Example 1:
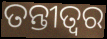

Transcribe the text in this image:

ତନ୍ତୀତ୍ୱର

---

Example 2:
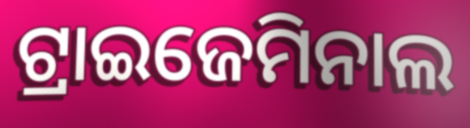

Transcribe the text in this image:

ଟ୍ରାଇଜେମିନାଲ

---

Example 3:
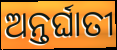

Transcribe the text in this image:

ଅନ୍ତର୍ଘାତୀ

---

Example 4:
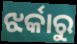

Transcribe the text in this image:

ଝର୍କାରୁ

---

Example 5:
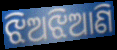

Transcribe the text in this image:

ଝିଅଝିଆଣି